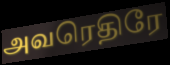
அவரெதிரே